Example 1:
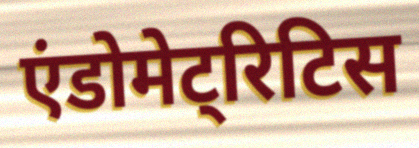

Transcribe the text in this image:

एंडोमेट्रिटिस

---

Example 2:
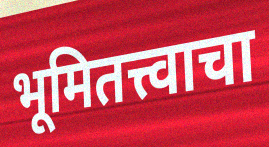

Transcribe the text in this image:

भूमितत्त्वाचा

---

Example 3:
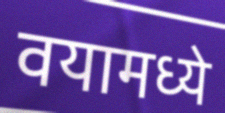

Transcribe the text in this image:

वयामध्ये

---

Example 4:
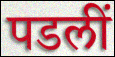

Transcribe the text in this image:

पडलीं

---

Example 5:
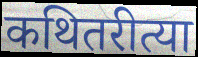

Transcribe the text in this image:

कथितरीत्या